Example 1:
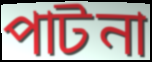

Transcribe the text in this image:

পাটনা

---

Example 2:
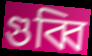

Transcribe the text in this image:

গুব্বি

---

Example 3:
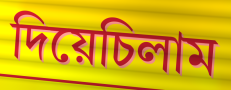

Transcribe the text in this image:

দিয়েচিলাম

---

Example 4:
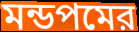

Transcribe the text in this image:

মন্ডপমের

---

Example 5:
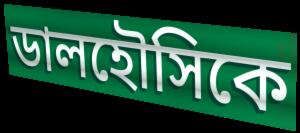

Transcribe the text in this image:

ডালহৌসিকে